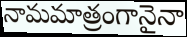
నామమాత్రంగానైనా